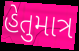
હેતુમાત્ર